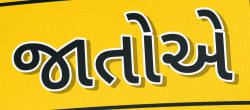
જાતોએ